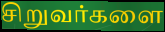
சிறுவர்களை